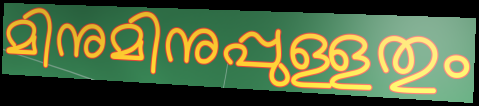
മിനുമിനുപ്പുള്ളതും